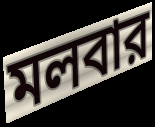
মলবার